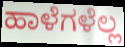
ಹಾಳೆಗಳೆಲ್ಲ